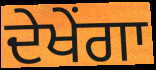
ਦੇਖੇਂਗਾ